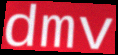
dmv